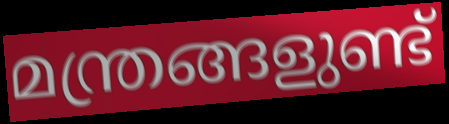
മന്ത്രങ്ങളുണ്ട്